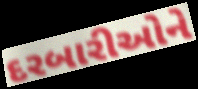
દરબારીઓને